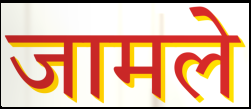
जामले